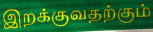
இறக்குவதற்கும்